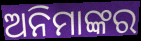
ଅନିମାଙ୍କର